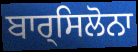
ਬਾਰ੍ਸਿਲੋਨਾ